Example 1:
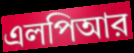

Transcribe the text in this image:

এলপিআর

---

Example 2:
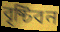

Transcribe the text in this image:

বৃষ্টিবন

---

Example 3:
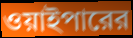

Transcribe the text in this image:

ওয়াইপারের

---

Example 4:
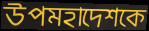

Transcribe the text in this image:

উপমহাদেশকে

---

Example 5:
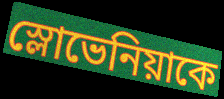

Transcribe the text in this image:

স্লোভেনিয়াকে